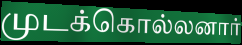
முடக்கொல்லனார்